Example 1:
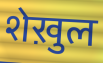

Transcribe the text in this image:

शेख़ुल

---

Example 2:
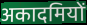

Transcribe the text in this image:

अकादमियों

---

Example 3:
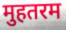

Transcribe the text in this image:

मुहतरम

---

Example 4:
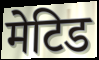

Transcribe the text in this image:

मेटिड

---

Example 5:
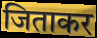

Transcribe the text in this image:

जिताकर